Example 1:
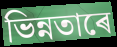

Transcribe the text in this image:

ভিন্নতাৰে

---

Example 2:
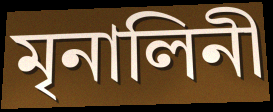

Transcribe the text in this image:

মৃনালিনী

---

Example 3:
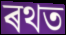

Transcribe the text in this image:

ৰথত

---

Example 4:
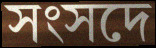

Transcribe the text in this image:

সংসদে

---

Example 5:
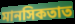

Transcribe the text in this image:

মানসিকতাত